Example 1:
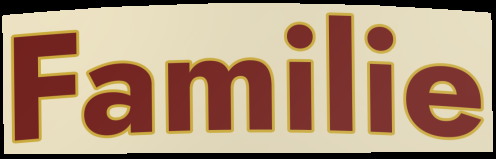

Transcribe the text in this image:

Familie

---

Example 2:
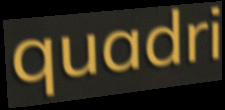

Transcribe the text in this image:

quadri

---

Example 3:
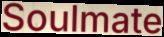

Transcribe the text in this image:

Soulmate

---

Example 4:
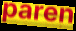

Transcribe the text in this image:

paren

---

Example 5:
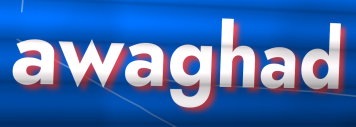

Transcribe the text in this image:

awaghad